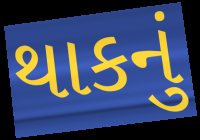
થાકનું